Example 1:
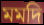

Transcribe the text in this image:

মমদি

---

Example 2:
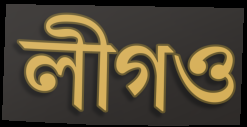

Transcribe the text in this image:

লীগও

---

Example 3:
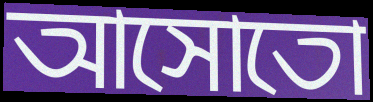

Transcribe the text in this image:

আসোতো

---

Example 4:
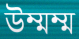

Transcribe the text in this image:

উম্মম্ম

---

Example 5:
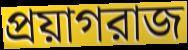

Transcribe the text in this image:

প্রয়াগরাজ